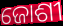
ଜୋଶୀ